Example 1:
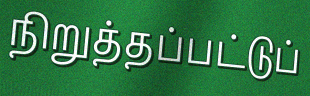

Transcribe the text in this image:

நிறுத்தப்பட்டுப்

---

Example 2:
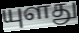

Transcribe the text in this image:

யுளது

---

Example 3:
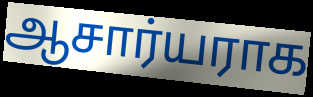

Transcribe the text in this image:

ஆசார்யராக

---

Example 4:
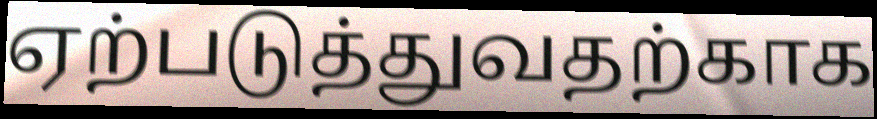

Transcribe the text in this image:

ஏற்படுத்துவதற்காக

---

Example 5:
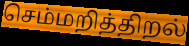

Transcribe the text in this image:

செம்மறித்திறல்